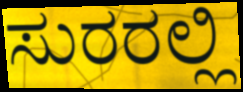
ಸುರರಲ್ಲಿ